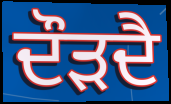
ਦੌੜਦੈ